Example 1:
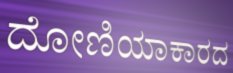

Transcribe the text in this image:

ದೋಣಿಯಾಕಾರದ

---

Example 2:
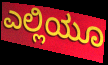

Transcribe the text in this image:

ಎಲ್ಲಿಯೂ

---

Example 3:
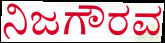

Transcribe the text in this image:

ನಿಜಗೌರವ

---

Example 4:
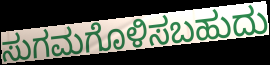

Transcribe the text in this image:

ಸುಗಮಗೊಳಿಸಬಹುದು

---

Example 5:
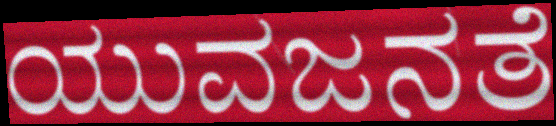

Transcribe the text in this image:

ಯುವಜನತೆ